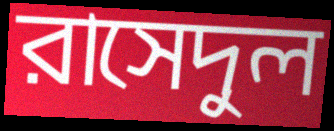
রাসেদুল